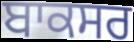
ਬਾਕਸਰ